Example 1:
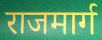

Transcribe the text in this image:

राजमार्ग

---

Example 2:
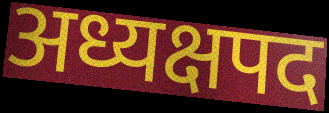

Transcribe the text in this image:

अध्यक्षपद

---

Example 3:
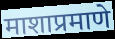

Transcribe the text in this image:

माशाप्रमाणे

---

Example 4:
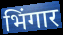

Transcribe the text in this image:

भिंगार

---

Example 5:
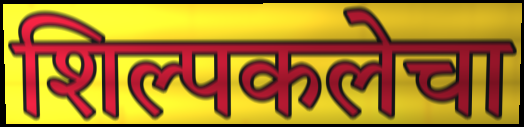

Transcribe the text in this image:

शिल्पकलेचा